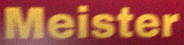
Meister